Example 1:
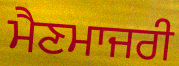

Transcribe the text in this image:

ਮੈਣਮਾਜਰੀ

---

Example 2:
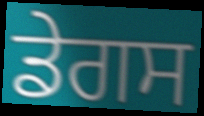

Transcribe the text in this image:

ਡੇਗਸ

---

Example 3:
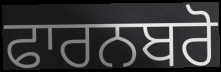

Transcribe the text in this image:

ਫਾਰਨਬਰੋ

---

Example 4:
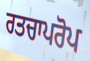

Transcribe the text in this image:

ਰਤਚਾਪਰੋਪ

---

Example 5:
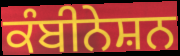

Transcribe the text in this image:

ਕੰਬੀਨੇਸ਼ਨ